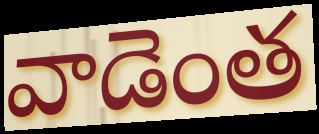
వాడెంత